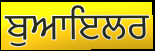
ਬੁਆਇਲਰ